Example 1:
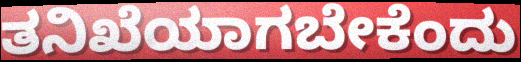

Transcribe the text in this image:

ತನಿಖೆಯಾಗಬೇಕೆಂದು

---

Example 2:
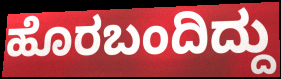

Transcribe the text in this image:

ಹೊರಬಂದಿದ್ದು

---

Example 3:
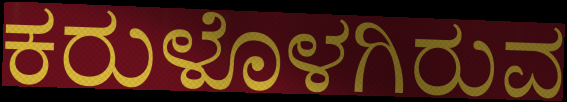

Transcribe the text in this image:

ಕರುಳೊಳಗಿರುವ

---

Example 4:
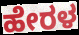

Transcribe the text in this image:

ಹೇರಳ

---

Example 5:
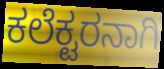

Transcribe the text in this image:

ಕಲೆಕ್ಟರನಾಗಿ